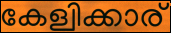
കേള്വിക്കാര്